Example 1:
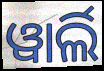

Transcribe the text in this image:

ୱାର୍ଲି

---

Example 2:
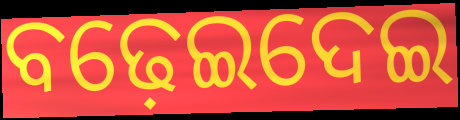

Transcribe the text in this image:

ବଢ଼େଇଦେଇ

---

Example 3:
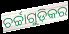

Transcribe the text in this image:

ଚର୍ଚ୍ଚାଗୁଡ଼ିକର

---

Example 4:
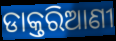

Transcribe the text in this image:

ଡାକ୍ତରିଆଣୀ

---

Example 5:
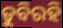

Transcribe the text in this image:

ଡୁବିରହି